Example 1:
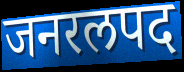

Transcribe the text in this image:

जनरलपद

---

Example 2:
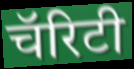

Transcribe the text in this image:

चॅरिटी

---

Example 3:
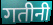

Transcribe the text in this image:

गतीनी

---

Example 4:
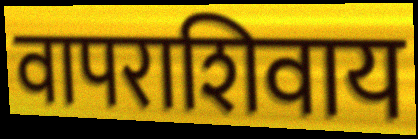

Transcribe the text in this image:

वापराशिवाय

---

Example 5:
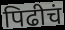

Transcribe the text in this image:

पिढीचं